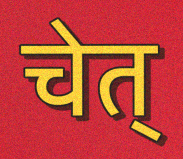
चेत्